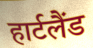
हार्टलैंड